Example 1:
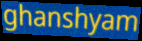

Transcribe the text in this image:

ghanshyam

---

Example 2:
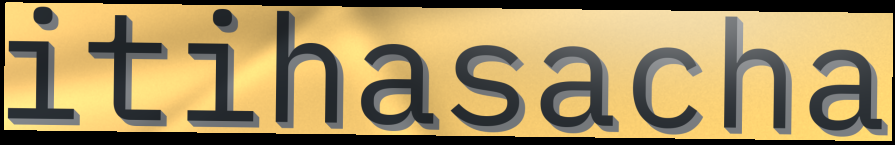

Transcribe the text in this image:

itihasacha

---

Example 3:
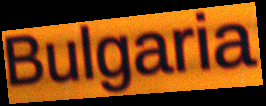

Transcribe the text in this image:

Bulgaria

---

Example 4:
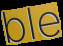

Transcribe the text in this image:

ble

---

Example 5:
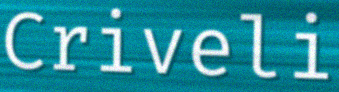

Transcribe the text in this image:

Criveli